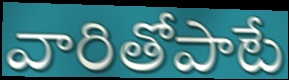
వారితోపాటే